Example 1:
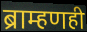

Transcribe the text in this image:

ब्राम्हणही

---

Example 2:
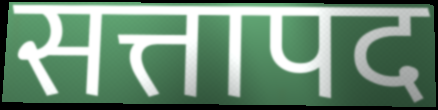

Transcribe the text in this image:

सत्तापद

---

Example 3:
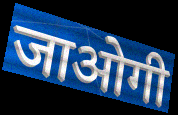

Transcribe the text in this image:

जाओगी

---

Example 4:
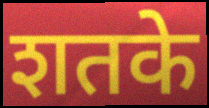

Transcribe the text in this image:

शतके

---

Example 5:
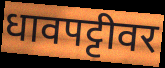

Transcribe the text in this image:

धावपट्टीवर